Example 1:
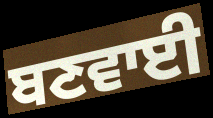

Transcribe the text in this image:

ਬਣਵਾਈ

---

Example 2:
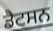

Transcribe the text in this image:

ਡੈਟਸਨ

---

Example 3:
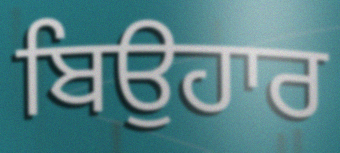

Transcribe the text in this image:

ਬਿਉਹਾਰ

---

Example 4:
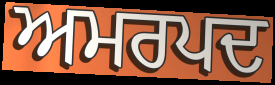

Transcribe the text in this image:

ਅਮਰਪਦ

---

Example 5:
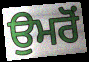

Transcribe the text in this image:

ਉਮਰੋਂ